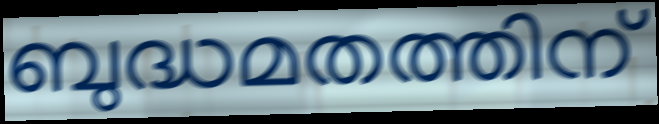
ബുദ്ധമതത്തിന്